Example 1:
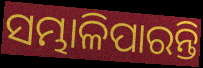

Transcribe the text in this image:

ସମ୍ଭାଳିପାରନ୍ତି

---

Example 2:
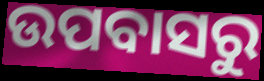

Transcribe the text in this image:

ଉପବାସରୁ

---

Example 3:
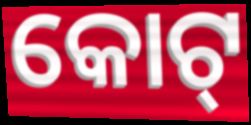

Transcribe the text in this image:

କୋଟ୍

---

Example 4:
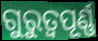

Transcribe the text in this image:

ଗୁରୁତ୍ବପୂର୍ଣ୍ଣ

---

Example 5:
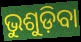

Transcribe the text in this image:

ଭୁଶୁଡ଼ିବା